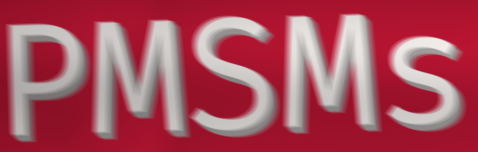
PMSMs